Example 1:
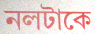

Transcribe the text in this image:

নলটাকে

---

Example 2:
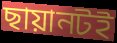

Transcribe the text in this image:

ছায়ানটই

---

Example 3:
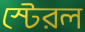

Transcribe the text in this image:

স্টেরল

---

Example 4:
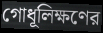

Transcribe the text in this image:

গোধূলিক্ষণের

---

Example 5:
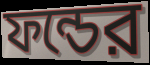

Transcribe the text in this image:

ফন্ডের